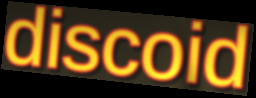
discoid